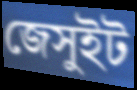
জেসুইট